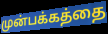
முன்பக்கத்தை